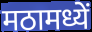
मठामध्यें